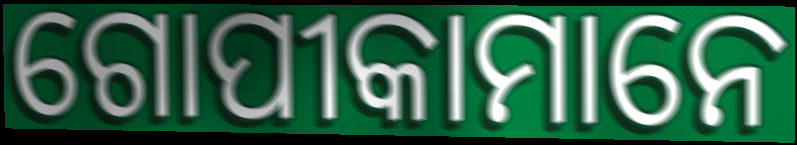
ଗୋପୀକାମାନେ